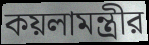
কয়লামন্ত্রীর